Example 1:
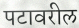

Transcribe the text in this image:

पटावरील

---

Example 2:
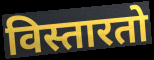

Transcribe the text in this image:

विस्तारतो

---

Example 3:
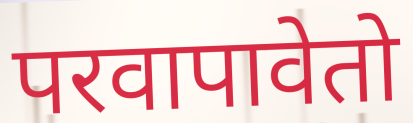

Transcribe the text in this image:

परवापावेतो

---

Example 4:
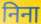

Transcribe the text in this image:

निना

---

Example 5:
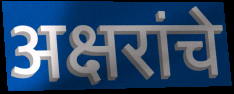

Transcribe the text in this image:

अक्षरांचे